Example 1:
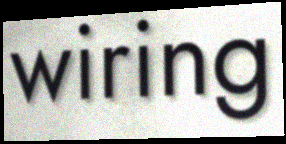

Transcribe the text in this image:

wiring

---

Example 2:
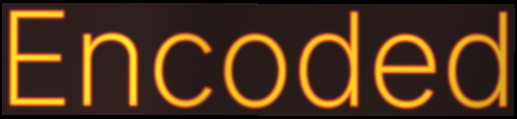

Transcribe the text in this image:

Encoded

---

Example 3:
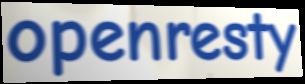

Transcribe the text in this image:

openresty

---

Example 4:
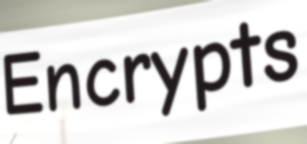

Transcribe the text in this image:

Encrypts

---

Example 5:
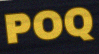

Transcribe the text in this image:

POQ